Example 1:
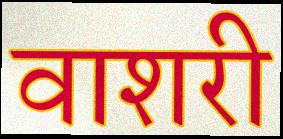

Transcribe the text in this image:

वाशरी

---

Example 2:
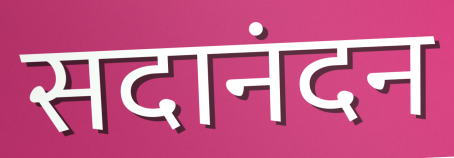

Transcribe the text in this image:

सदानंदन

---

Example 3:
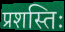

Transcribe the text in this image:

प्रशस्तिः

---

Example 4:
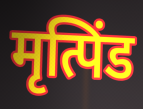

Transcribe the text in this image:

मृत्पिंड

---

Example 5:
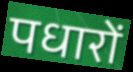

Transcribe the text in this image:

पधारों